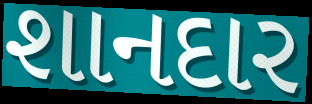
શાનદાર